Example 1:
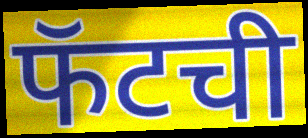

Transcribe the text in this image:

फॅटची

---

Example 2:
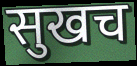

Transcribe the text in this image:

सुखच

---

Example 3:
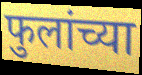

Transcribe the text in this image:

फुलांच्या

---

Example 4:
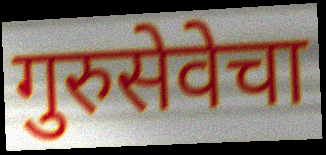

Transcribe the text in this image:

गुरुसेवेचा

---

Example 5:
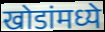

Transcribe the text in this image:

खोडांमध्ये